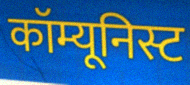
कॉम्यूनिस्ट